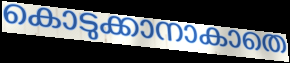
കൊടുക്കാനാകാതെ